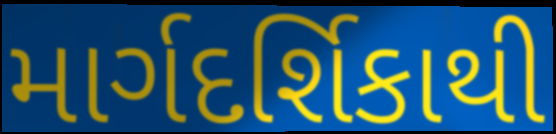
માર્ગદર્શિકાથી